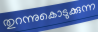
തുറന്നുകൊടുക്കുന്ന